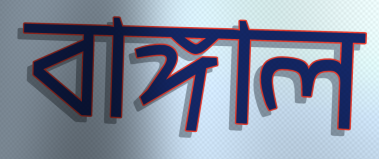
বাঙ্গাল